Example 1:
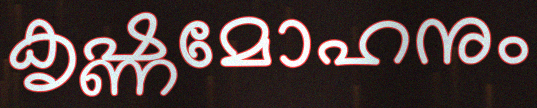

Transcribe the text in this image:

കൃഷ്ണമോഹനും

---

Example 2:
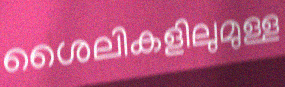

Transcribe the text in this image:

ശൈലികളിലുമുള്ള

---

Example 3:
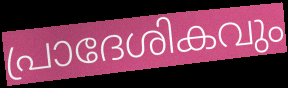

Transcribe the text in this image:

പ്രാദേശികവും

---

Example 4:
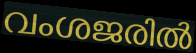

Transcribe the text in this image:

വംശജരിൽ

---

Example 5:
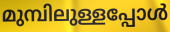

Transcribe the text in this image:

മുമ്പിലുള്ളപ്പോൾ